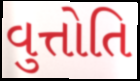
વુત્તોતિ